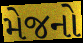
મેજનો